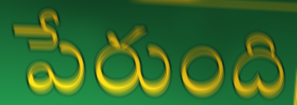
పేరుంది